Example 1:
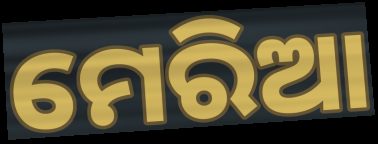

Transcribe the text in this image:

ମେରିଆ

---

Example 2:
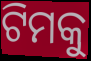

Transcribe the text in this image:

ଟିମକୁ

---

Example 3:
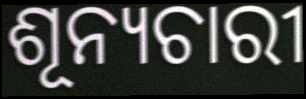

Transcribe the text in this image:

ଶୂନ୍ୟଚାରୀ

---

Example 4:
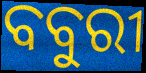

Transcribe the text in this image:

ବବୁରୀ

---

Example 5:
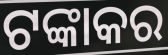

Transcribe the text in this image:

ଟଙ୍କାକର